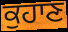
ਕੁਹਾਣ